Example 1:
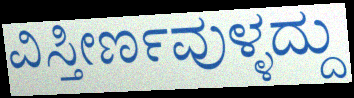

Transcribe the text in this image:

ವಿಸ್ತೀರ್ಣವುಳ್ಳದ್ದು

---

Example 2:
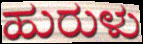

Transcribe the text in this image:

ಹುರುಳು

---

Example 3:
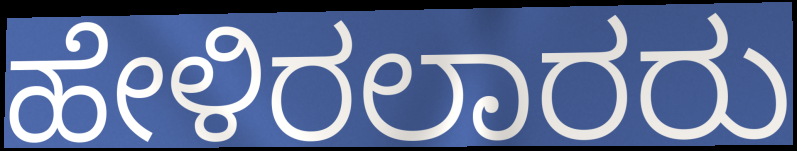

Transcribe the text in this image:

ಹೇಳಿರಲಾರರು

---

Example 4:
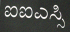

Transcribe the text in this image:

ಐಐಎಸ್ಸಿ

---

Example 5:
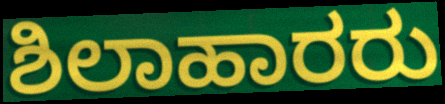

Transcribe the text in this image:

ಶಿಲಾಹಾರರು